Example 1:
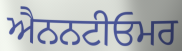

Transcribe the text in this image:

ਐਨਨਟੀਓਮਰ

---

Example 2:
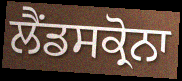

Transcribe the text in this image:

ਲੈਂਡਸਕ੍ਰੋਨਾ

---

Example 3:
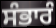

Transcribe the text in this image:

ਸੰਭਾਰੰ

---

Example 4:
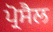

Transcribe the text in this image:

ਪ੍ਰੋਸੈਲ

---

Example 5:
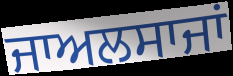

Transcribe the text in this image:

ਜਾਅਲਸਾਜਾਂ